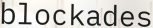
blockades